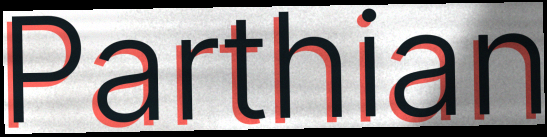
Parthian